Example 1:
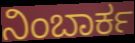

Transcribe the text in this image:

ನಿಂಬಾರ್ಕ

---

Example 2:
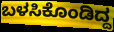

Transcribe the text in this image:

ಬಳಸಿಕೊಂಡಿದ್ದ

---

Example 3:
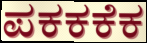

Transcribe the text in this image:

ಪಕಕಕೆಕ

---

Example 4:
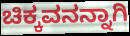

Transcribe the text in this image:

ಚಿಕ್ಕವನನ್ನಾಗಿ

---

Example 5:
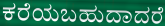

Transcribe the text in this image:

ಕರೆಯಬಹುದಾದರೆ